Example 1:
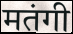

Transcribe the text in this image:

मतंगी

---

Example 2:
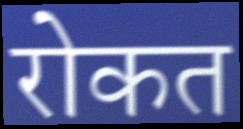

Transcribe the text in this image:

रोकत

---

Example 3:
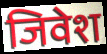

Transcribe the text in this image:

जिवेश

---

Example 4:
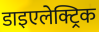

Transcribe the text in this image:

डाइएलेक्ट्रिक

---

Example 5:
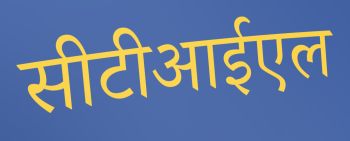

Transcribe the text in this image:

सीटीआईएल